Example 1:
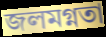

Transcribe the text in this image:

জলমগ্নতা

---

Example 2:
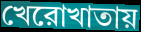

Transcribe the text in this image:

খেরোখাতায়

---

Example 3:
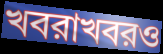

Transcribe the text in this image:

খবরাখবরও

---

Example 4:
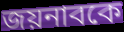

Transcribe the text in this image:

জয়নাবকে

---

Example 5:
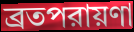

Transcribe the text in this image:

ব্রতপরায়ণা